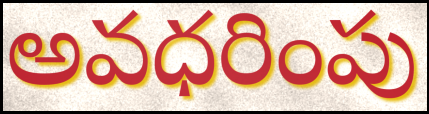
అవధరింపు